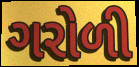
ગરોળી